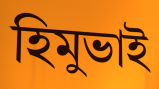
হিমুভাই